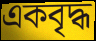
একবৃদ্ধ